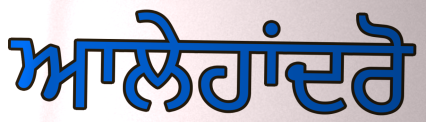
ਆਲੇਹਾਂਦਰੋ